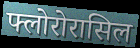
फ्लोरोरासिल